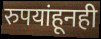
रुपयांहूनही